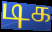
டிக